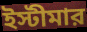
ইস্টীমার